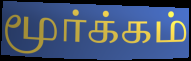
மூர்க்கம்